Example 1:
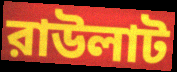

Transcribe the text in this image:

রাউলাট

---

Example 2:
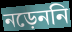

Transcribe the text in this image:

নড়েননি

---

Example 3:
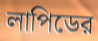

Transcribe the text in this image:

লাপিডের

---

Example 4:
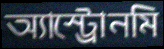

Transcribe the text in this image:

অ্যাস্ট্রোনমি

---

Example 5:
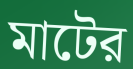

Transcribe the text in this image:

মাটের